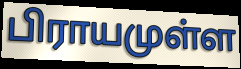
பிராயமுள்ள